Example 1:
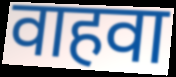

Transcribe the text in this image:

वाहवा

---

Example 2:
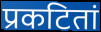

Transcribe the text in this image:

प्रकटितां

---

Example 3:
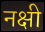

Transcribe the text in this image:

नक्षी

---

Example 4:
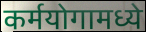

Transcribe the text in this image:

कर्मयोगामध्ये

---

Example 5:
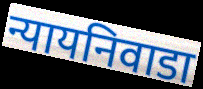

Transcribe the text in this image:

न्यायनिवाडा